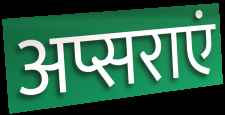
अप्सराएं